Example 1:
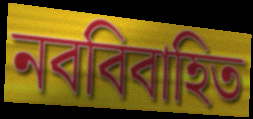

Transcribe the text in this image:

নববিবাহিত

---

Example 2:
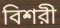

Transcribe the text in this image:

বিশরী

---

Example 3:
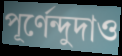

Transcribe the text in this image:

পূর্ণেন্দুদাও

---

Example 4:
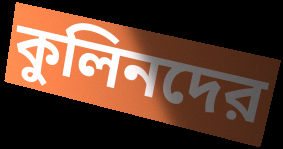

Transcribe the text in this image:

কুলিনদের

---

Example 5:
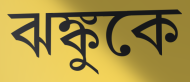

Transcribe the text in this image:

ঝঙ্কুকে